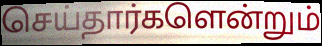
செய்தார்களென்றும்